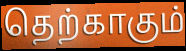
தெற்காகும்